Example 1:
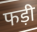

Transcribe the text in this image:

फड़ी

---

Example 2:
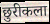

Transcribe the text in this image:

छुरीकला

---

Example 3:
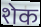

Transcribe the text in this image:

शेक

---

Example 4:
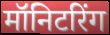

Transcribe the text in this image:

मॉनिटरिंग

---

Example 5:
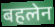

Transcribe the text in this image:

बहलेन